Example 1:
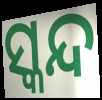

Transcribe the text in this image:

ସ୍କନ୍ଦ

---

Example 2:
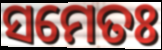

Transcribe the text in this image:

ସମେତଃ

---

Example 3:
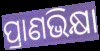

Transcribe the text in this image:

ପ୍ରାଣଭିକ୍ଷା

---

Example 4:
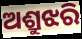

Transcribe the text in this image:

ଅଶ୍ରୁଝରି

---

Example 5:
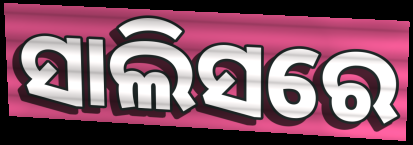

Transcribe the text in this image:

ସାଲିସରେ